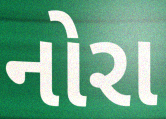
નોરા